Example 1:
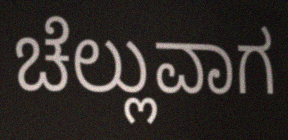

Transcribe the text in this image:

ಚೆಲ್ಲುವಾಗ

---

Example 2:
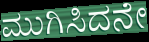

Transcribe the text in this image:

ಮುಗಿಸಿದನೇ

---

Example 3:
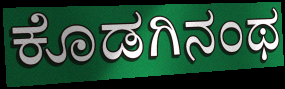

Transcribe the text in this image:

ಕೊಡಗಿನಂಥ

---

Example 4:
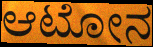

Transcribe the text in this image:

ಆಟೋನ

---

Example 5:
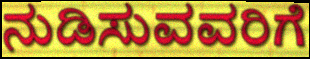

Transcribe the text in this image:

ನುಡಿಸುವವರಿಗೆ